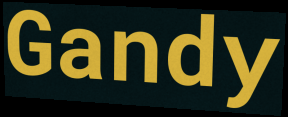
Gandy